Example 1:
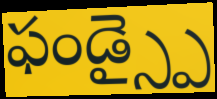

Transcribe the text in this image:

ఫండ్స్పై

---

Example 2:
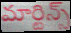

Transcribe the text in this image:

మార్టిన్స్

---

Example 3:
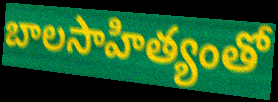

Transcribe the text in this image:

బాలసాహిత్యంతో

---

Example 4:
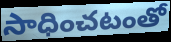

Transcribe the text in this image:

సాధించటంతో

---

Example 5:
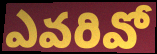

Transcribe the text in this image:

ఎవరివో